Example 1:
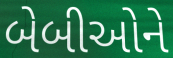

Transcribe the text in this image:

બેબીઓને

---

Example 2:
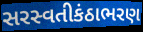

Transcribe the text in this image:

સરસ્વતીકંઠાભરણ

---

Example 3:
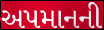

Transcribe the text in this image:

અપમાનની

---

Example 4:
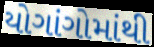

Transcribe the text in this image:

યોગાંગોમાંથી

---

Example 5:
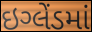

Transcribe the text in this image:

ઇગ્લેંડમાં